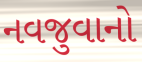
નવજુવાનો